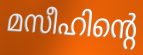
മസീഹിന്റെ